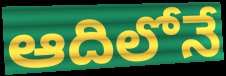
ఆదిలోనే